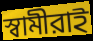
স্বামীরাই